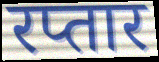
रप्तार